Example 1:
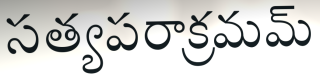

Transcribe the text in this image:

సత్యపరాక్రమమ్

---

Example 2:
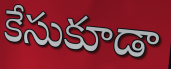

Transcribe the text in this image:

కేసుకూడా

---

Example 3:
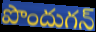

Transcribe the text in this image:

పొందుగన్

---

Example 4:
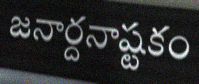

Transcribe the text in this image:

జనార్దనాష్టకం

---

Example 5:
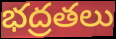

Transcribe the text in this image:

భద్రతలు